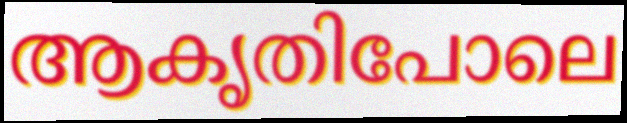
ആകൃതിപോലെ